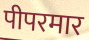
पीपरमार